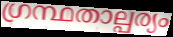
ഗ്രന്ഥതാല്പര്യം